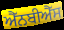
ਐੱਨਬੀਐੱਸ